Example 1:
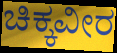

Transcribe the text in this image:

ಚಿಕ್ಕವೀರ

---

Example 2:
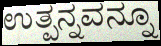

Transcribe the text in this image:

ಉತ್ಪನ್ನವನ್ನೂ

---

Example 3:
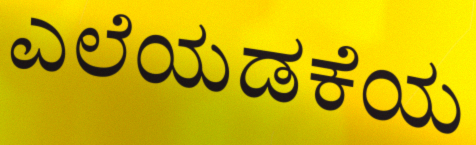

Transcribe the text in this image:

ಎಲೆಯಡಕೆಯ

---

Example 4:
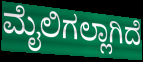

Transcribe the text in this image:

ಮೈಲಿಗಲ್ಲಾಗಿದೆ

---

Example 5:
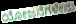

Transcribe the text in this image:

ಯೋಜನೆಗಳೇನು